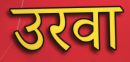
उरवा